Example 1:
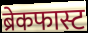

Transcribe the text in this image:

ब्रेकफास्ट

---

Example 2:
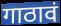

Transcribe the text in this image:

गाठावं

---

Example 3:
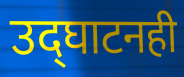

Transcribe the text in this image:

उद्घाटनही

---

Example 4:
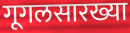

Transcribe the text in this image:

गूगलसारख्या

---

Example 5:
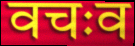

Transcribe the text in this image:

वचःव